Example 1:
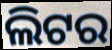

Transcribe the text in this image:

ଲିଟର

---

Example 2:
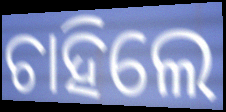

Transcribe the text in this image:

ଚାହିଲେ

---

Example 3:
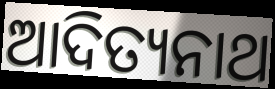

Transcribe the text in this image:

ଆଦିତ୍ୟନାଥ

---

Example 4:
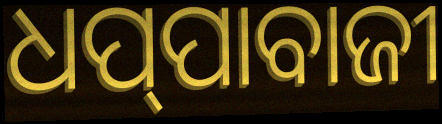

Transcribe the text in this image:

ଧପ୍‌ପାବାଜୀ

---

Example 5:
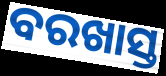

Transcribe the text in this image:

ବରଖାସ୍ତ